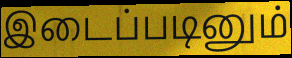
இடைப்படினும்